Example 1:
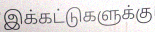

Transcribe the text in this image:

இக்கட்டுகளுக்கு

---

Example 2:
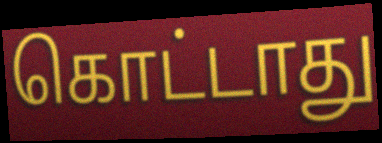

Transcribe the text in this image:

கொட்டாது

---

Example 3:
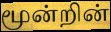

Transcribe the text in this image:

மூன்றின்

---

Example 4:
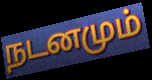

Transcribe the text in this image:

நடனமும்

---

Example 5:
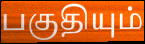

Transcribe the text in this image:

பகுதியும்